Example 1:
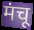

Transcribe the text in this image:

मंचू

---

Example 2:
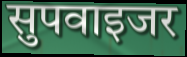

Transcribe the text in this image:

सुपवाइजर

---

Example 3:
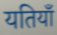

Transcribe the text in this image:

यतियाँ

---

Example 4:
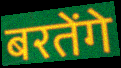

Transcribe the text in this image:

बरतेंगे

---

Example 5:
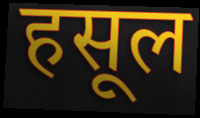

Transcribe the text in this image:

हसूल